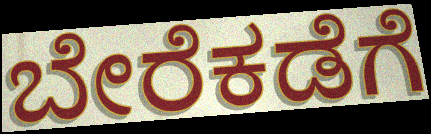
ಬೇರೆಕಡೆಗೆ